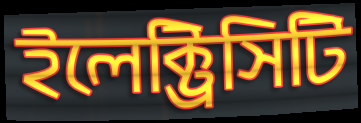
ইলেক্ট্রিসিটি